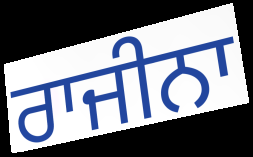
ਰਾਜੀਨਾ